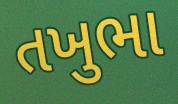
તખુભા